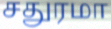
சதுரமா